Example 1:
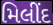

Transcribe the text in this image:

મિલીંદ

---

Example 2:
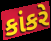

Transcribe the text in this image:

કાંકરે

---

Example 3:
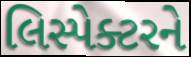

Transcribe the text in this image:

લિસ્પેક્ટરને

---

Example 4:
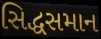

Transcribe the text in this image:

સિદ્ધસમાન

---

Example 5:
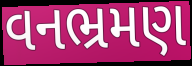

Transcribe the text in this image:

વનભ્રમણ